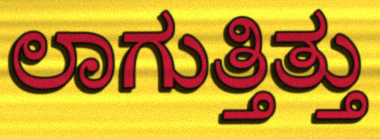
ಲಾಗುತ್ತಿತ್ತು